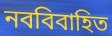
নববিবাহিত